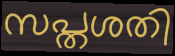
സപ്തശതി